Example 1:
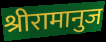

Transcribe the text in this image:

श्रीरामानुज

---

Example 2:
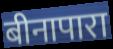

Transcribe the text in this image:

बीनापारा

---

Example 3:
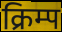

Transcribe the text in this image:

क्रिम्प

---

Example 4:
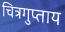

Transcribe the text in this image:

चित्रगुप्ताय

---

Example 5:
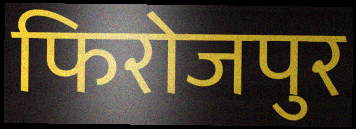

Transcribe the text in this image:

फिरोजपुर